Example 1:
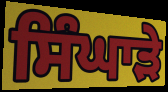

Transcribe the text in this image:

ਸਿੰਘਾੜੇ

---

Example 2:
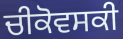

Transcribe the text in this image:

ਚੀਕੋਵਸਕੀ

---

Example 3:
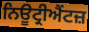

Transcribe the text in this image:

ਨਿਊਟ੍ਰੀਐਂਟਜ਼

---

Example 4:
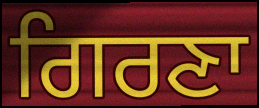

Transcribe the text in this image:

ਗਿਰਣਾ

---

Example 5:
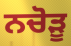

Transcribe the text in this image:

ਨਚੋੜੂ